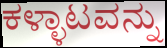
ಕಳ್ಳಾಟವನ್ನು